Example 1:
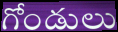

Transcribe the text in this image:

గోండులు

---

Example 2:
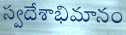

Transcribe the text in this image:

స్వదేశాభిమానం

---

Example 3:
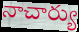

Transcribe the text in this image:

నాచార్యు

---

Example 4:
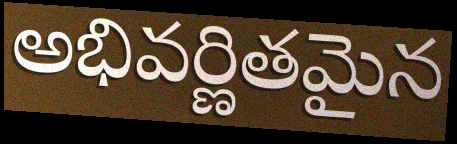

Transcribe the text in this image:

అభివర్ణితమైన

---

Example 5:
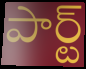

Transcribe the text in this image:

పార్ట్